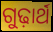
ଗୁଢ଼ାର୍ଥ